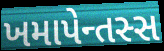
ખમાપેન્તસ્સ